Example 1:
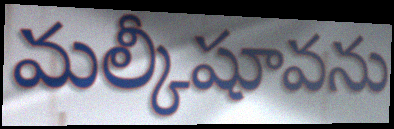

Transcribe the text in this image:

మల్కీషూవను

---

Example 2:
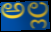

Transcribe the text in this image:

అల్ల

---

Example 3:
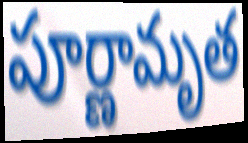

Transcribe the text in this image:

పూర్ణామృత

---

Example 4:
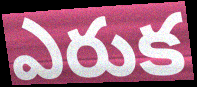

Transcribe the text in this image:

ఎరుక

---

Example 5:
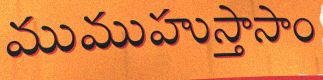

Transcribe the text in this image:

ముముహుస్తాసాం